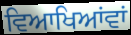
ਵਿਆਖਿਆਂਵਾਂ